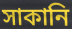
সাকানি